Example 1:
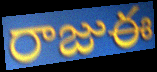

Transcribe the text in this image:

రాజుఈ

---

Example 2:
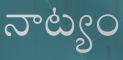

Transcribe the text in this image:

నాట్యం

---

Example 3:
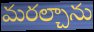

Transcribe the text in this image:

మరల్చాను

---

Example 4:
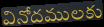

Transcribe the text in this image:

వినోదములకు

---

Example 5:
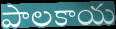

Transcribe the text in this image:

పాలకాయ